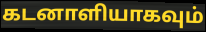
கடனாளியாகவும்